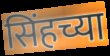
सिंहच्या